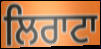
ਲਿਰਾਟਾ